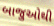
બાજુઓથી